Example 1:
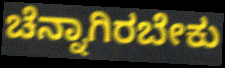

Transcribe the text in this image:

ಚೆನ್ನಾಗಿರಬೇಕು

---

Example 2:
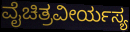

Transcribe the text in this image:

ವೈಚಿತ್ರವೀರ್ಯಸ್ಯ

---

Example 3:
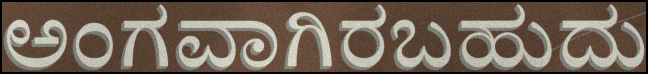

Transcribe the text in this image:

ಅಂಗವಾಗಿರಬಹುದು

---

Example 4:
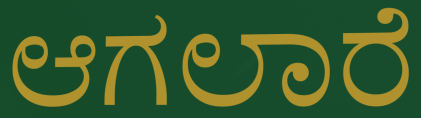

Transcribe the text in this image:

ಆಗಲಾರೆ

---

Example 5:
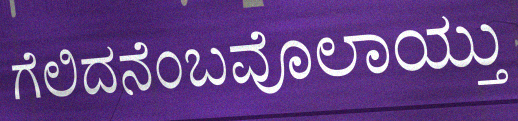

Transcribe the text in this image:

ಗೆಲಿದನೆಂಬವೊಲಾಯ್ತು